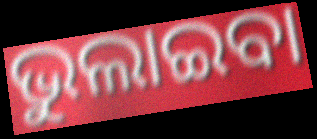
ଭୁଲାଇବା